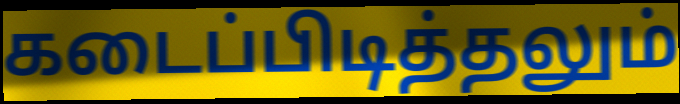
கடைப்பிடித்தலும்